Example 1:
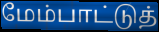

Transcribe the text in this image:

மேம்பாட்டுத்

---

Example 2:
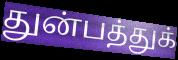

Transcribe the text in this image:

துன்பத்துக்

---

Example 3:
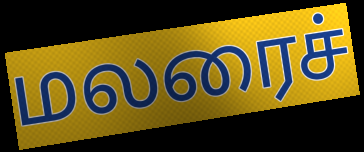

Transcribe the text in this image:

மலரைச்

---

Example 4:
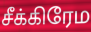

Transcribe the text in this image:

சீக்கிரேம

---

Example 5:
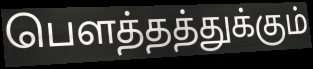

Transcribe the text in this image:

பௌத்தத்துக்கும்